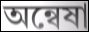
অন্বেষা